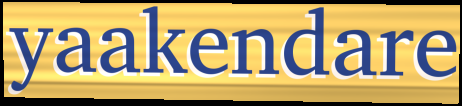
yaakendare